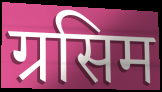
ग्रसिम